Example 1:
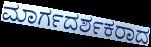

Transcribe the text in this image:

ಮಾರ್ಗದರ್ಶಕರಾದ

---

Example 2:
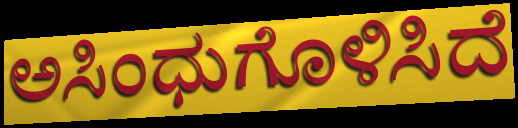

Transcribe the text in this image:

ಅಸಿಂಧುಗೊಳಿಸಿದೆ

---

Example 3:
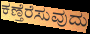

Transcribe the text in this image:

ಕಣ್ತೆರೆಸುವುದು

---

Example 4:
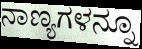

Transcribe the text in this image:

ನಾಣ್ಯಗಳನ್ನೂ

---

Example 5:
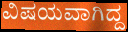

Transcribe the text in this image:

ವಿಷಯವಾಗಿದ್ದ